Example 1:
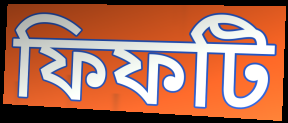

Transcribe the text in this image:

ফিফটি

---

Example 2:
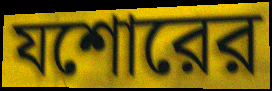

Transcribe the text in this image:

যশোরের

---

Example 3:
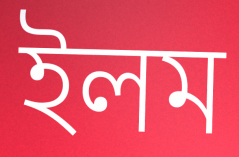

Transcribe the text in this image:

ইলম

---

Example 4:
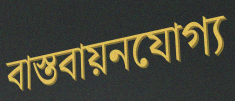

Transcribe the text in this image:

বাস্তবায়নযোগ্য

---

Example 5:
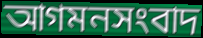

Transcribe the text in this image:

আগমনসংবাদ